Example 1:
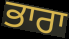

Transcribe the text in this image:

ਭਾਰਾ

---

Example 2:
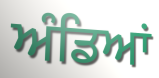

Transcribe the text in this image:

ਅੰਡਿਆਂ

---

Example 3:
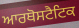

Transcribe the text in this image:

ਆਰਥੋਸਟੈਟਿਕ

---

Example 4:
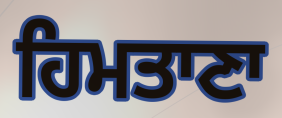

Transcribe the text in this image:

ਹਿਮਤਾਣਾ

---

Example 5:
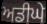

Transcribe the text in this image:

ਅਡੀਘੇ